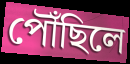
পৌঁছিলে